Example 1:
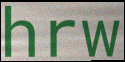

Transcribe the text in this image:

hrw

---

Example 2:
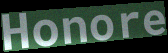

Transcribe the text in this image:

Honore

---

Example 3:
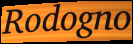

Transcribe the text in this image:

Rodogno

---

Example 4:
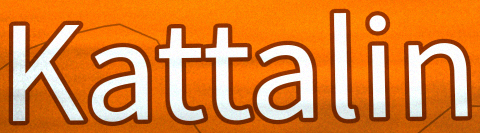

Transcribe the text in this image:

Kattalin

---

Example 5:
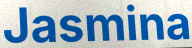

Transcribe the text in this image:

Jasmina